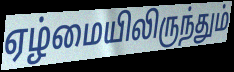
ஏழ்மையிலிருந்தும்